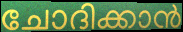
ചോദിക്കാൻ